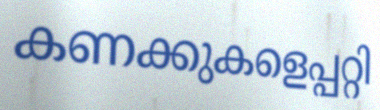
കണക്കുകളെപ്പറ്റി